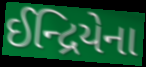
ઈન્દ્રિયેના